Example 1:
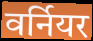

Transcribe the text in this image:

वर्नियर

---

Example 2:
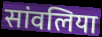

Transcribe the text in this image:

सांवलिया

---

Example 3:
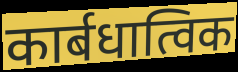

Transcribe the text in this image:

कार्बधात्विक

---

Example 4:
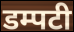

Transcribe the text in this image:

डम्पटी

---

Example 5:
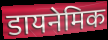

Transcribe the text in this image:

डायनेमिक